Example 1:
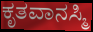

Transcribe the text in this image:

ಕೃತವಾನಸ್ಮಿ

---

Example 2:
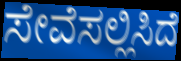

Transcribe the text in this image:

ಸೇವೆಸಲ್ಲಿಸಿದೆ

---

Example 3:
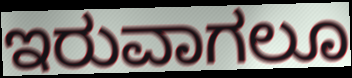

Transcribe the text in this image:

ಇರುವಾಗಲೂ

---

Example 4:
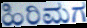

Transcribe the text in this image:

ಹಿರಿಮಗ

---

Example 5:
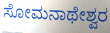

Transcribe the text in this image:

ಸೋಮನಾಥೇಶ್ವರ